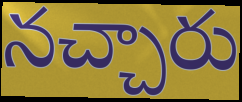
నచ్చారు